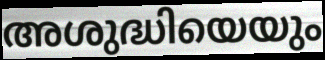
അശുദ്ധിയെയും